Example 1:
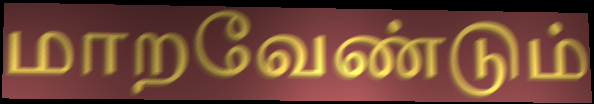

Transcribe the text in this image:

மாறவேண்டும்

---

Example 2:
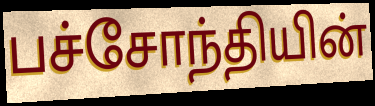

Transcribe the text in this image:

பச்சோந்தியின்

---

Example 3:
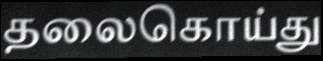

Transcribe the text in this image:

தலைகொய்து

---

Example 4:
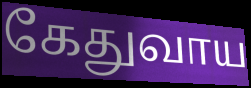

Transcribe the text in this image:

கேதுவாய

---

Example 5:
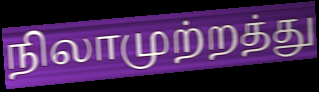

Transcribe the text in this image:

நிலாமுற்றத்து